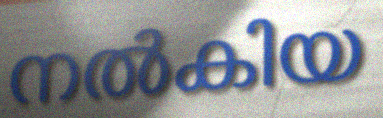
നൽകിയ